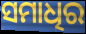
ସମାଧିର